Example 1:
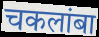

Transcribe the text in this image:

चकलांबा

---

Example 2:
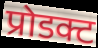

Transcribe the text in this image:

प्रोडक्ट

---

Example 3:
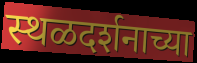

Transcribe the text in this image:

स्थळदर्शनाच्या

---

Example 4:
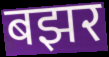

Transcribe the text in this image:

बझर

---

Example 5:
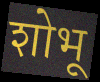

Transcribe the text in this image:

शोभू